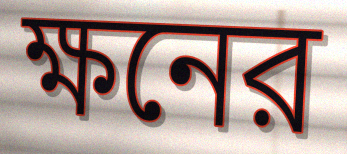
ক্ষনের